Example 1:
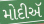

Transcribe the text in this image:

મોદીઍ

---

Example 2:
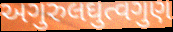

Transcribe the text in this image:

અગુરુલઘુત્વગુણ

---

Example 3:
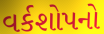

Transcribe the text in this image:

વર્કશોપનો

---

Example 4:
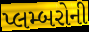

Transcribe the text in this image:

પ્લમ્બરોની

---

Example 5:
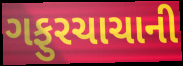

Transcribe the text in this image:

ગફુરચાચાની